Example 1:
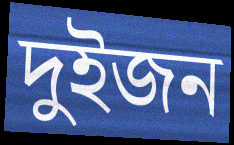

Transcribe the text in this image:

দুইজন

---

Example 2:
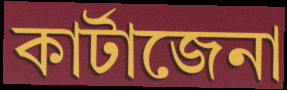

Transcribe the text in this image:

কাৰ্টাজেনা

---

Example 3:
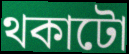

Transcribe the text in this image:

থকাটো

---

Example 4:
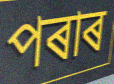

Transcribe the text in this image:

পৰাৰ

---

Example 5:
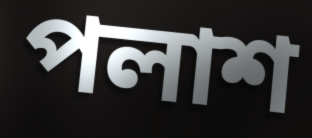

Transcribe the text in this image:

পলাশ